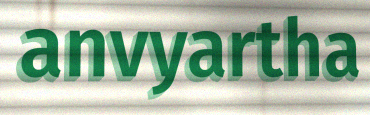
anvyartha